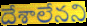
దేశాలేనని